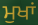
ਮੁਖਾਂ